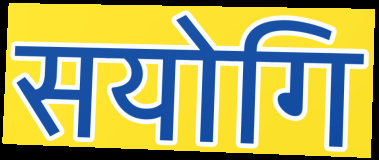
सयोगि